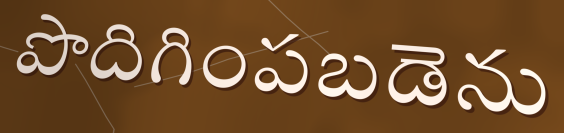
పొదిగింపబడెను